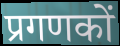
प्रगणकों